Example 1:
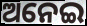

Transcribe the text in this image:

ଅନେଇ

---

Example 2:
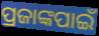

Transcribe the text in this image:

ପ୍ରଜାଙ୍କପାଇଁ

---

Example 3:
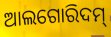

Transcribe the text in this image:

ଆଲଗୋରିଦମ୍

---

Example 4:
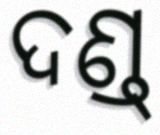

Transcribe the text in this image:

ଦଣ୍ଡ୍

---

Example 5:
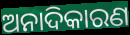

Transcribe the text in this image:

ଅନାଦିକାରଣ